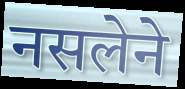
नसलेने